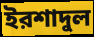
ইরশাদুল